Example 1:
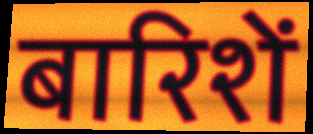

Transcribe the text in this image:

बारिशें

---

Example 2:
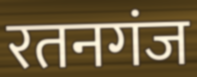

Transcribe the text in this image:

रतनगंज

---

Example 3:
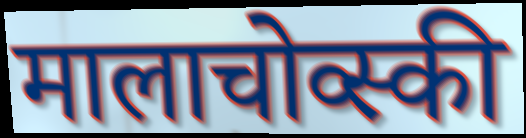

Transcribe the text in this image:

मालाचोव्स्की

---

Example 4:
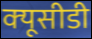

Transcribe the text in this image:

क्यूसीडी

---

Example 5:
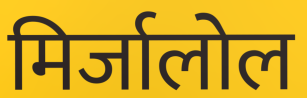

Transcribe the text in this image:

मिर्जालोल